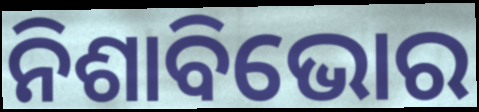
ନିଶାବିଭୋର